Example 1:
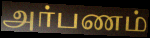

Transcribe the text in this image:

அர்பணம்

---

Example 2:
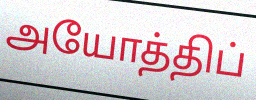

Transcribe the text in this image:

அயோத்திப்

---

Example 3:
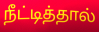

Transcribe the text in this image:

நீட்டித்தால்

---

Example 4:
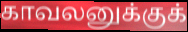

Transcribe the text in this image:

காவலனுக்குக்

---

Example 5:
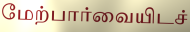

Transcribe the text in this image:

மேற்பார்வையிடச்